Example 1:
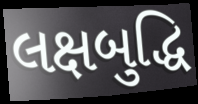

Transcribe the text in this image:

લક્ષબુદ્ધિ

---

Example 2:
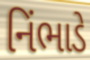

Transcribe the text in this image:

નિંભાડે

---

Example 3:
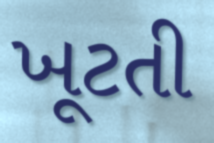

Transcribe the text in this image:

ખૂટતી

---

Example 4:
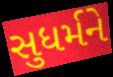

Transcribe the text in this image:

સુધર્મને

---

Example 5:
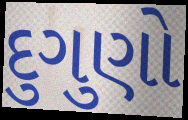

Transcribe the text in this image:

દુગુણો